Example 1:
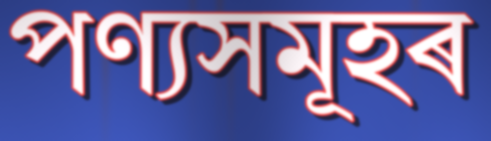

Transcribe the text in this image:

পণ্যসমূহৰ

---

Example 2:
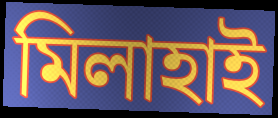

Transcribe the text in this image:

মিলাহাই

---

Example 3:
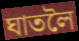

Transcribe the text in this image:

ঘাতলৈ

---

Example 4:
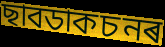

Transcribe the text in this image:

ছাবডাকচনৰ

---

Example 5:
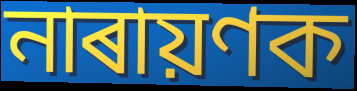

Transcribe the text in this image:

নাৰায়ণক